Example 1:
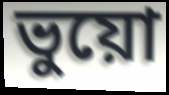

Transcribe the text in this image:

ভুয়ো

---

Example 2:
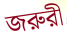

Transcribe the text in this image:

জরুরী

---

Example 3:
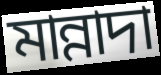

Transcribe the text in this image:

মান্নাদা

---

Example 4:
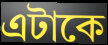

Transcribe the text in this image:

এটাকে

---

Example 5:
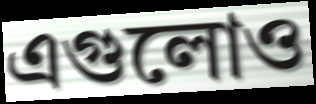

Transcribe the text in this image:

এগুলোও